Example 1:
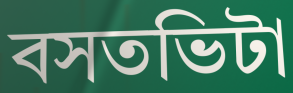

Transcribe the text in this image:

বসতভিটা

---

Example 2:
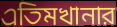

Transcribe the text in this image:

এতিমখানার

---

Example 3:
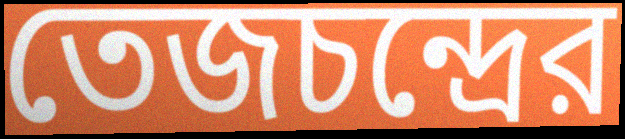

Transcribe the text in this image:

তেজচন্দ্রের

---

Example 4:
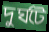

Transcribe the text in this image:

দুর্ঘটে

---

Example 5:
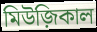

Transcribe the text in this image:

মিউজ়িকাল